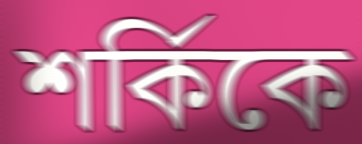
শর্কিকে